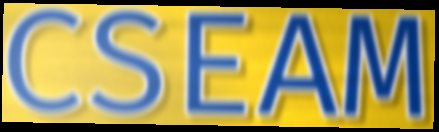
CSEAM